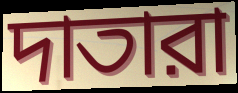
দাতারা